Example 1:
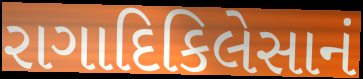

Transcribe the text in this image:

રાગાદિકિલેસાનં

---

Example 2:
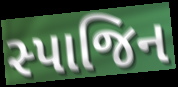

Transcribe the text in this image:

સ્પાજિન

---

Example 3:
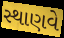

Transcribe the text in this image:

સ્થાણવે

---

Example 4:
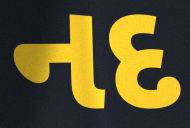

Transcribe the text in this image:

નદ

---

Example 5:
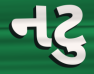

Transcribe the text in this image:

નટુ